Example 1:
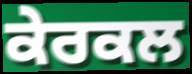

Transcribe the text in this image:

ਕੇਰਕਲ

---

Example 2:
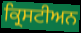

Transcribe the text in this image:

ਕ੍ਰਿਸਟੀਅਨ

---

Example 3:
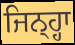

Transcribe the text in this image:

ਜਿਨ੍ਹ੍ਹਾ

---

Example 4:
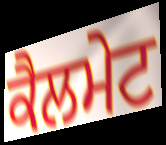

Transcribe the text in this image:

ਕੈਲਮੇਟ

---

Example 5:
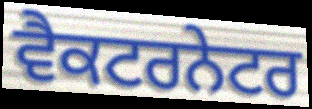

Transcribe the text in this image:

ਵੈਕਟਰਨੇਟਰ